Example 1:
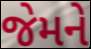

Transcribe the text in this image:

જેમને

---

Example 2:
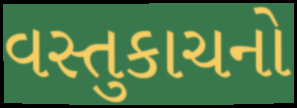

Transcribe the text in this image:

વસ્તુકાચનો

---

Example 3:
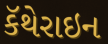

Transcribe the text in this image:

કૅથેરાઇન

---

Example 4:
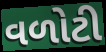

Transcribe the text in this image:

વળોટી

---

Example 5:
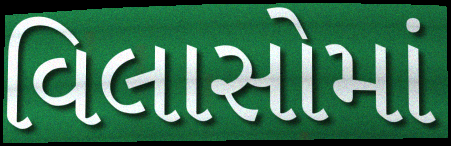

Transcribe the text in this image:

વિલાસોમાં